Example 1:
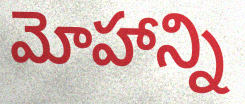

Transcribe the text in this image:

మోహాన్ని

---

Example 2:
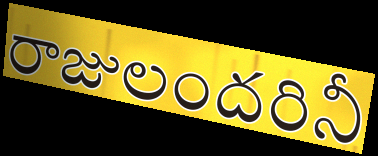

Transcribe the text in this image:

రాజులందరినీ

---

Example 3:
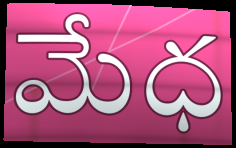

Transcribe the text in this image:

మేధ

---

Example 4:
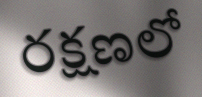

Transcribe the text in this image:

రక్షణలో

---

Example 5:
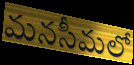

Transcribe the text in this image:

మనసీమలో